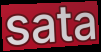
sata